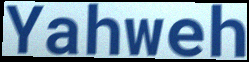
Yahweh